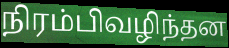
நிரம்பிவழிந்தன